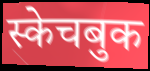
स्केचबुक